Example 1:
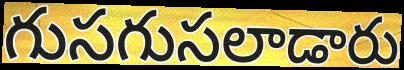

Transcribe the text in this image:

గుసగుసలాడారు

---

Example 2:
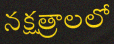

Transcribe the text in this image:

నక్షత్రాలలో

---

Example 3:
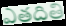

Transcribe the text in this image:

ఎతదితి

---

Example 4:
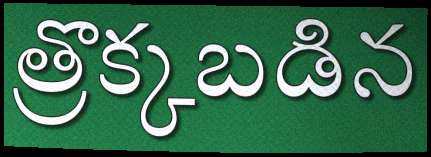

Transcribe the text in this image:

త్రొక్కబడిన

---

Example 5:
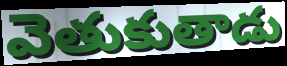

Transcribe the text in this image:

వెతుకుతాడు